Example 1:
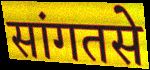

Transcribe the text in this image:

सांगतसे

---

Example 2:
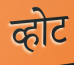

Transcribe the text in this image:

व्होट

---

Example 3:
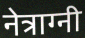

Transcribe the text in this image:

नेत्राग्नी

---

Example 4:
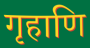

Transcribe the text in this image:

गृहाणि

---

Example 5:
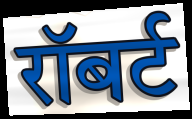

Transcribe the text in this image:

रॉबर्ट